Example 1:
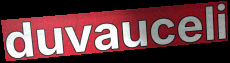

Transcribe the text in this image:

duvauceli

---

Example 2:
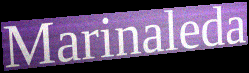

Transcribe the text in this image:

Marinaleda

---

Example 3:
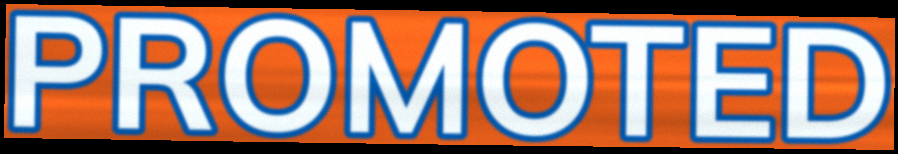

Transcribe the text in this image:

PROMOTED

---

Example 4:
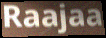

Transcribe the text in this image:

Raajaa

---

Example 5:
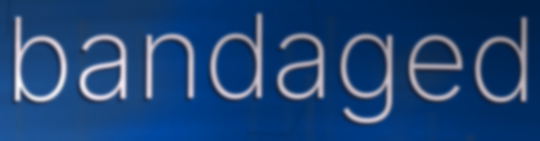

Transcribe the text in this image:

bandaged